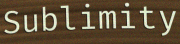
Sublimity